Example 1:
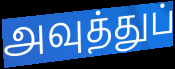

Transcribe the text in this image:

அவுத்துப்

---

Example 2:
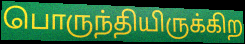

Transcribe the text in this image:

பொருந்தியிருக்கிற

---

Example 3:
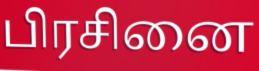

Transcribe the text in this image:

பிரசினை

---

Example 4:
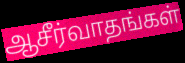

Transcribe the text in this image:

ஆசீர்வாதங்கள்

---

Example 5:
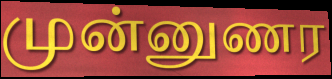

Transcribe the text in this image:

முன்னுணர